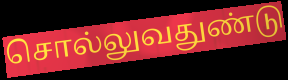
சொல்லுவதுண்டு